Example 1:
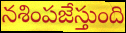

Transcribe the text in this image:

నశింపజేస్తుంది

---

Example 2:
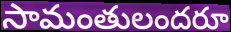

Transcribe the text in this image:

సామంతులందరూ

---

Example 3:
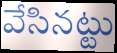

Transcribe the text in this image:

వేసినట్టు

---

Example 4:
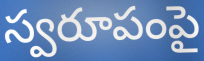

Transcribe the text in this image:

స్వరూపంపై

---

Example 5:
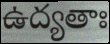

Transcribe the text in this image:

ఉద్యతాః